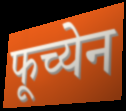
फूच्येन